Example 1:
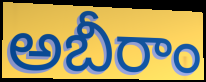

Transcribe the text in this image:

అబీరాం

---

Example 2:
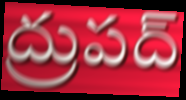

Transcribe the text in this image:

ద్రుపద్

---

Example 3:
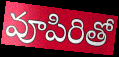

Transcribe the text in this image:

వూపిరితో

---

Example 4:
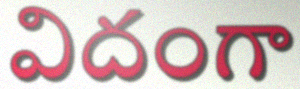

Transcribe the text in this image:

విదంగా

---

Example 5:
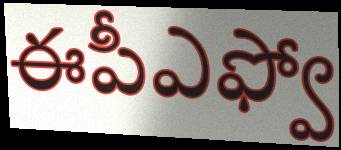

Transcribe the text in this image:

ఈపీఎఫ్వో